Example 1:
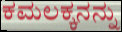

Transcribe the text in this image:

ಕಮಲಕ್ಕನನ್ನು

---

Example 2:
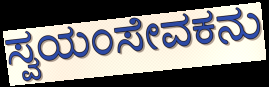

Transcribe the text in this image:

ಸ್ವಯಂಸೇವಕನು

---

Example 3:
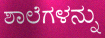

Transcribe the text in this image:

ಶಾಲೆಗಳನ್ನು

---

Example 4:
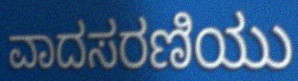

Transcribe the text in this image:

ವಾದಸರಣಿಯು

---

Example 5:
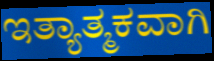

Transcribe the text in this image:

ಇತ್ಯಾತ್ಮಕವಾಗಿ